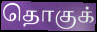
தொகுக்